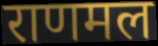
राणमल